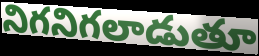
నిగనిగలాడుతూ